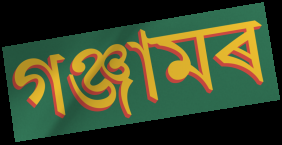
গঞ্জামৰ